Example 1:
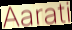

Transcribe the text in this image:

Aarati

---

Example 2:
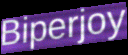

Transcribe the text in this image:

Biperjoy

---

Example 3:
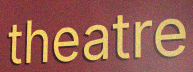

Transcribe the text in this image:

theatre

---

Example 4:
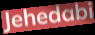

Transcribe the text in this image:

Jehedabi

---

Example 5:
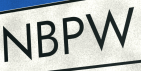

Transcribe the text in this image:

NBPW